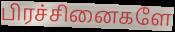
பிரச்சினைகளே